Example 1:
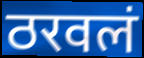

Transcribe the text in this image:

ठरवलं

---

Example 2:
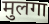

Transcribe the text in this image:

मुलगा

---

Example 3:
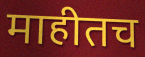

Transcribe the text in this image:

माहीतच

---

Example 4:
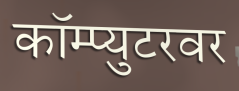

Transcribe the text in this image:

कॉम्प्युटरवर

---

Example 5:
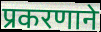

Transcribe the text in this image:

प्रकरणाने